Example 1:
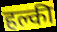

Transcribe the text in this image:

हल्की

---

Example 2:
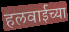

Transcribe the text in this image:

हलवाईच्या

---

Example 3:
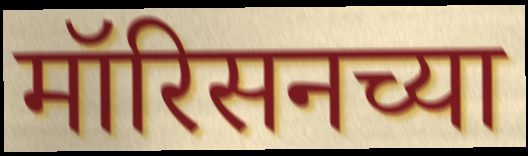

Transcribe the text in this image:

मॉरिसनच्या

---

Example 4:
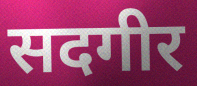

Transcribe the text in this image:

सदगीर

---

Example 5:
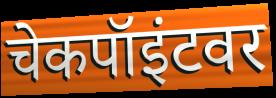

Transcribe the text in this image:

चेकपॉइंटवर